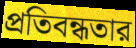
প্রতিবন্ধতার